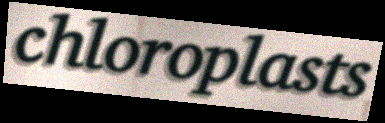
chloroplasts